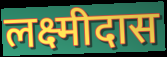
लक्ष्मीदास